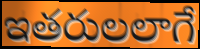
ఇతరులలాగే